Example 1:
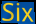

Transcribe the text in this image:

Six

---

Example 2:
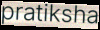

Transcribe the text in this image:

pratiksha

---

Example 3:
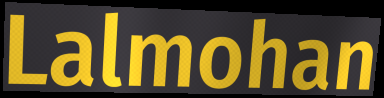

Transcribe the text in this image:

Lalmohan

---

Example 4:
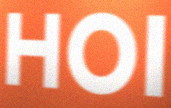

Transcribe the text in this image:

HOI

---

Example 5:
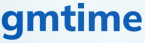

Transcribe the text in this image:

gmtime